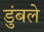
डुंबले